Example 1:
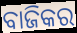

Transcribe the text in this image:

ବାଜିକର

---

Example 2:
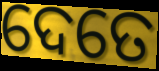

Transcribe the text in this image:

ଦେତେ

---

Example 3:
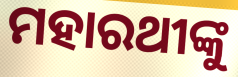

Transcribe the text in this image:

ମହାରଥୀଙ୍କୁ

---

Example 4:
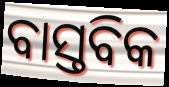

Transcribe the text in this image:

ବାସ୍ତବିକ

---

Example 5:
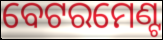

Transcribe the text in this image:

ବେଟରମେଣ୍ଟ